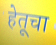
हेतूचा